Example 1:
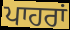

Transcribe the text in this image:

ਪਾਹਰਾਂ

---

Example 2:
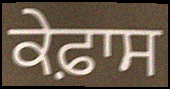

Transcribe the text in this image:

ਕੇਫ਼ਾਸ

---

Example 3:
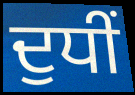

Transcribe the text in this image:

ਦੁਧੀਂ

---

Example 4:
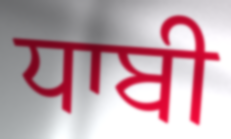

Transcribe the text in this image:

ਧਾਬੀ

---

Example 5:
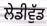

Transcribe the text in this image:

ਲੇਡੀਵੁੱਡ